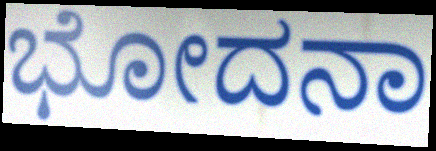
ಭೋದನಾ